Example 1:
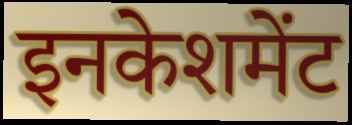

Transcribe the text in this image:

इनकेशमेंट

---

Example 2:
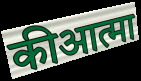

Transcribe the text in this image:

कीआत्मा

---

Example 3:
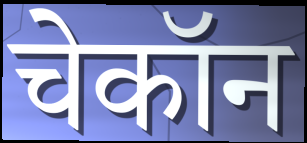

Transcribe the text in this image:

चेकॉन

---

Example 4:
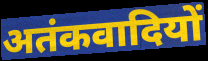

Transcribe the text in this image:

अतंकवादियों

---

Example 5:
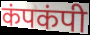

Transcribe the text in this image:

कंपकंपी